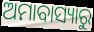
ଅମାବାସ୍ୟାରୁ